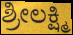
ಶ್ರೀಲಕ್ಷ್ಮಿ